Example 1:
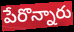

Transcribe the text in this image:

పేరొన్నారు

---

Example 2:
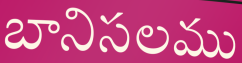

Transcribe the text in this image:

బానిసలము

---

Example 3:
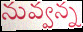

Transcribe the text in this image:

నువ్వన్న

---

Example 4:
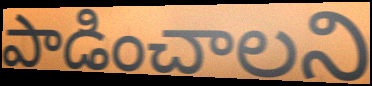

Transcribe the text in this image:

పాడించాలని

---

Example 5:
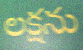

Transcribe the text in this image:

లక్షను